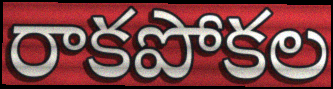
రాకపోకల